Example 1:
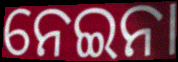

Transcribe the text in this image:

ନେଇନା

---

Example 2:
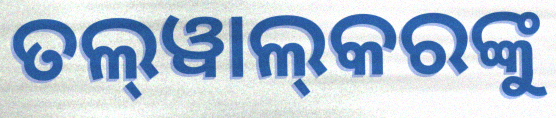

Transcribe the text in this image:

ତଲ୍‌ୱାଲ୍‌କରଙ୍କୁ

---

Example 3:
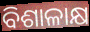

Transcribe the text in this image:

ବିଶାଳାକ୍ଷ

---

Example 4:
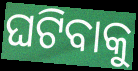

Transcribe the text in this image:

ଘଟିବାକୁ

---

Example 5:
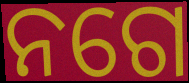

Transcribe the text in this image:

ନଗେ